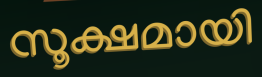
സൂക്ഷമായി